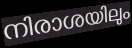
നിരാശയിലും